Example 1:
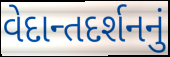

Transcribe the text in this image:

વેદાન્તદર્શનનું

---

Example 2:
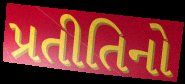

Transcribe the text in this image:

પ્રતીતિનો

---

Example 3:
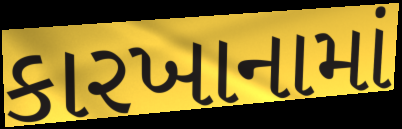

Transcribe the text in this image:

કારખાનામાં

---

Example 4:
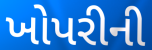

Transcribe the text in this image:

ખોપરીની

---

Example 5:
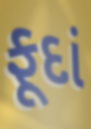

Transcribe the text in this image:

ફૂદાં